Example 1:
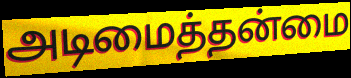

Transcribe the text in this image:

அடிமைத்தன்மை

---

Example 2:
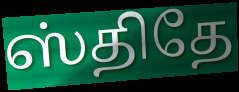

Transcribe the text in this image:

ஸ்திதே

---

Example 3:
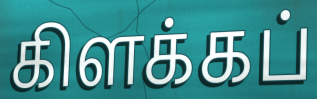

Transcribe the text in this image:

கிளக்கப்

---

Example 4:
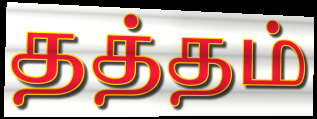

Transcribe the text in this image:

தத்தம்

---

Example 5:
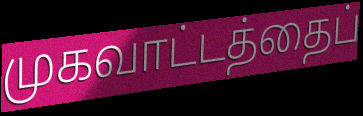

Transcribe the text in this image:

முகவாட்டத்தைப்